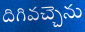
దిగివచ్చెను